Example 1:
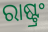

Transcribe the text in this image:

ରାଷ୍ଟ୍ରଂ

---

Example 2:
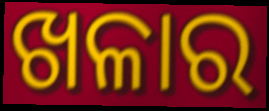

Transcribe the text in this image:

ଖଳାର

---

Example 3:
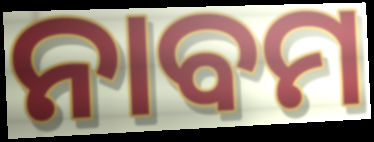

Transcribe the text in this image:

ନାବମ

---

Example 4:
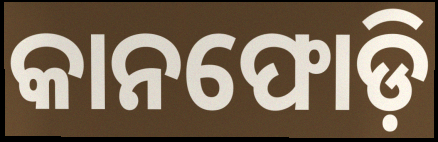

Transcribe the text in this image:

କାନଫୋଡ଼ି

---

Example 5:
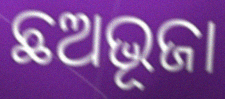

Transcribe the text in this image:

ଛଅଭୂଜା